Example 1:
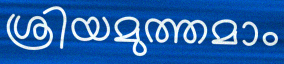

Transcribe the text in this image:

ശ്രിയമുത്തമാം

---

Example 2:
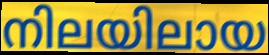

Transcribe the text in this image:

നിലയിലായ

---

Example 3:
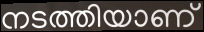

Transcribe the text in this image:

നടത്തിയാണ്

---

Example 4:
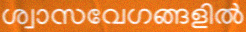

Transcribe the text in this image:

ശ്വാസവേഗങ്ങളിൽ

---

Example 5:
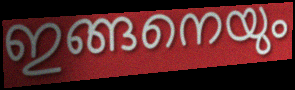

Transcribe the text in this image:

ഇങ്ങനെയും